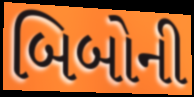
બિબોની